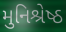
મુનિશ્રેષ્ઠ